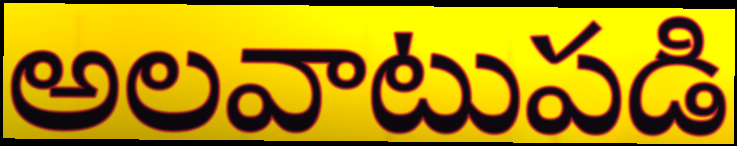
అలవాటుపడి